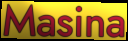
Masina